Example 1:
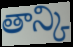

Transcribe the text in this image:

తాన్కి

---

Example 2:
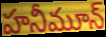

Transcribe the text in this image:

హనీమూన్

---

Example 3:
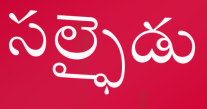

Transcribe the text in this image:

సల్ఫైడు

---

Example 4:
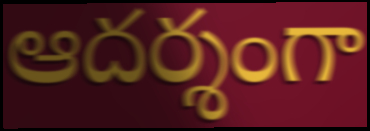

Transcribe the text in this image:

ఆదర్శంగా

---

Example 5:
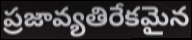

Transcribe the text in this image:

ప్రజావ్యతిరేకమైన